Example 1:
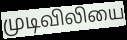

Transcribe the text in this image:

முடிவிலியை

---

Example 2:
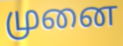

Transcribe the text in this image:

முனை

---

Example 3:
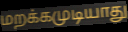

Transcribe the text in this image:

மறக்கமுடியாது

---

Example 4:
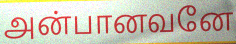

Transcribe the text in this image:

அன்பானவனே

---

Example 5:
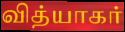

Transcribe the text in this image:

வித்யாகர்